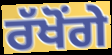
ਰੱਖੋਂਗੇ